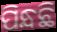
ପିନ୍ଧଛି